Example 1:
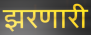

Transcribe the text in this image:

झरणारी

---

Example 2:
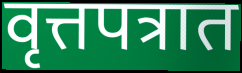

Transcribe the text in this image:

वृत्तपत्रात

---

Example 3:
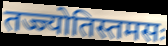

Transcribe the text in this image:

तज्ज्योतिस्तमसः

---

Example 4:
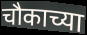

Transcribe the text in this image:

चौकाच्या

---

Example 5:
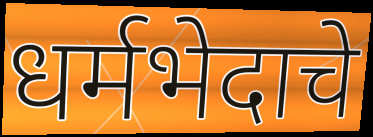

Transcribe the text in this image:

धर्मभेदाचे